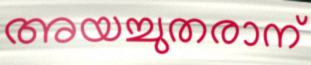
അയച്ചുതരാന്